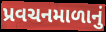
પ્રવચનમાળાનું